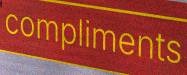
compliments